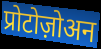
प्रोटोज़ोअन